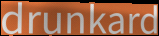
drunkard